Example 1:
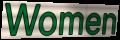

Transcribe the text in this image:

Women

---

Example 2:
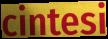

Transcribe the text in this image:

cintesi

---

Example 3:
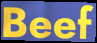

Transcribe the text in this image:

Beef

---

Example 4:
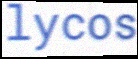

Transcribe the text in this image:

lycos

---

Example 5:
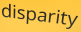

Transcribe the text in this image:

disparity